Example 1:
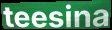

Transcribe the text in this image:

teesina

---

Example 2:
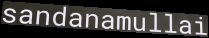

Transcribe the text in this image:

sandanamullai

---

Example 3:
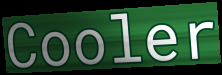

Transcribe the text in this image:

Cooler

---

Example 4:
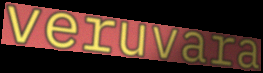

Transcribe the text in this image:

veruvara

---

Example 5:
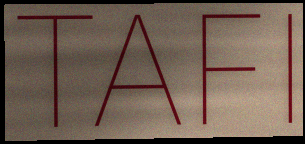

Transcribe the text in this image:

TAFI